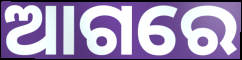
ଆଗରେ